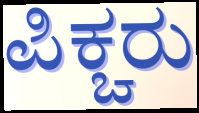
ಪಿಕ್ಚರು